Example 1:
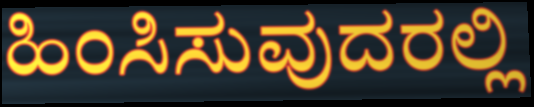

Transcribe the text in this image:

ಹಿಂಸಿಸುವುದರಲ್ಲಿ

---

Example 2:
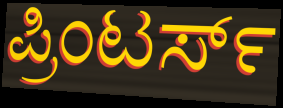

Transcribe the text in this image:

ಪ್ರಿಂಟರ್ಸ್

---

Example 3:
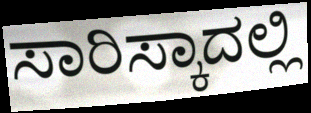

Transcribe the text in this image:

ಸಾರಿಸ್ಕಾದಲ್ಲಿ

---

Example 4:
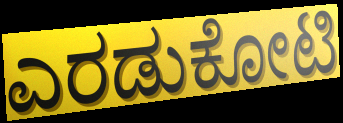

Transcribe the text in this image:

ಎರಡುಕೋಟಿ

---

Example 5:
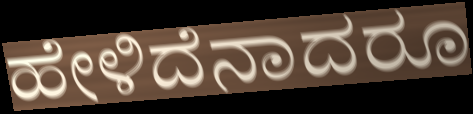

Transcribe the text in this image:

ಹೇಳಿದೆನಾದರೂ